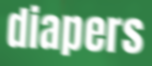
diapers